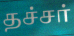
தச்சர்